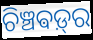
ଚିଞ୍ଚଵଡ଼୍‌ର